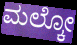
ಮಲ್ಕೋ